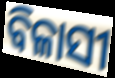
ବିଳାସୀ